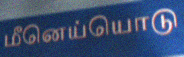
மீனெய்யொடு